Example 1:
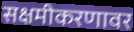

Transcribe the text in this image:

सक्षमीकरणावर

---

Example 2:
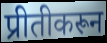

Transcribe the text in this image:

प्रीतीकरून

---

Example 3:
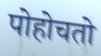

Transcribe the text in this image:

पोहोचतो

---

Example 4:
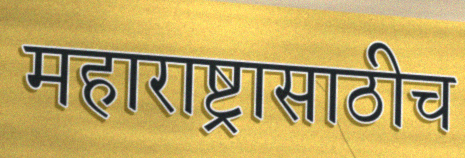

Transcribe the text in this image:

महाराष्ट्रासाठीच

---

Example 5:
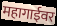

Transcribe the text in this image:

महागाईवर